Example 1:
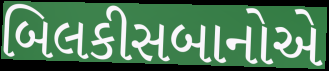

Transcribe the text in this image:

બિલકીસબાનોએ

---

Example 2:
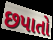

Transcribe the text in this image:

છપાતો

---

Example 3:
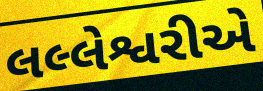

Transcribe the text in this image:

લલ્લેશ્વરીએ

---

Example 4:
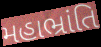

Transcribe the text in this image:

મહાભ્રાંતિ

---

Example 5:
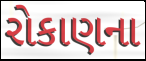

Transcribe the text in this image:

રોકાણના